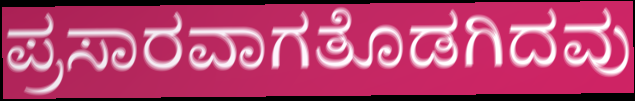
ಪ್ರಸಾರವಾಗತೊಡಗಿದವು